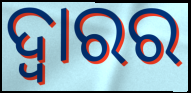
ଦ୍ୱାରର